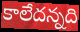
కాలేదన్నది